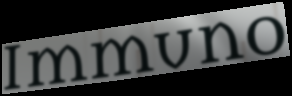
Immuno